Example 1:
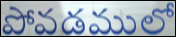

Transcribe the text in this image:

పోవడములో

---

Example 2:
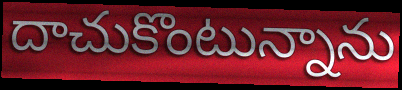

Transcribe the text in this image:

దాచుకొంటున్నాను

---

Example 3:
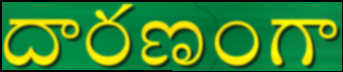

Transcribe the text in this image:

దారణంగా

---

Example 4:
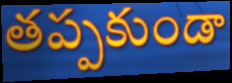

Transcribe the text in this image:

తప్పకుండా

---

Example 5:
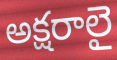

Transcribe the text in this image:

అక్షరాలై